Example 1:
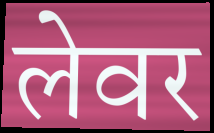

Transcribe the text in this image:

लेवर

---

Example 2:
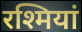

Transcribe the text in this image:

रश्मियां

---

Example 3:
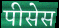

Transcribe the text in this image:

पीसेस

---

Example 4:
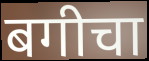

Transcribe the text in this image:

बगीचा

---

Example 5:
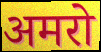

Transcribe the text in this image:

अमरो